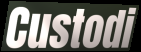
Custodi